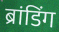
ब्रांडिंग